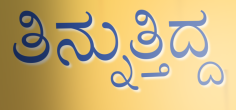
ತಿನ್ನುತ್ತಿದ್ದ